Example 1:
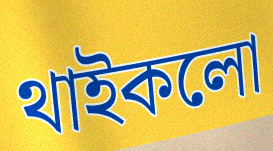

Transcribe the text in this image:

থাইকলো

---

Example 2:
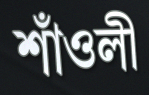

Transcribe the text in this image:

শাঁওলী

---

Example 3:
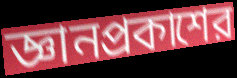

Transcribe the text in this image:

জ্ঞানপ্রকাশের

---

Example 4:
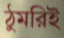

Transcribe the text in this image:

ঠুমরিই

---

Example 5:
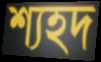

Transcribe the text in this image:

শ্যহদ